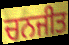
ਚਨਜੀਤ